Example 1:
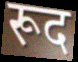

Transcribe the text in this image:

रूद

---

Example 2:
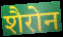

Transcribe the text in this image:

शैरोन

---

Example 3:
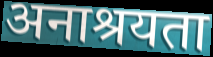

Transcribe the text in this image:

अनाश्रयता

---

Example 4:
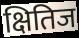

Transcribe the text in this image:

क्षितिज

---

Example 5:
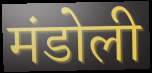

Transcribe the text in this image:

मंडोली